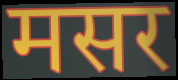
मसर